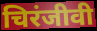
चिरंजीवी